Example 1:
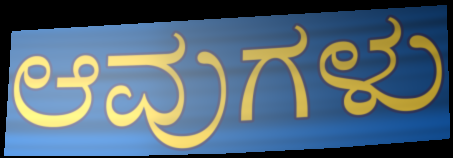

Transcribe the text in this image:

ಆವುಗಳು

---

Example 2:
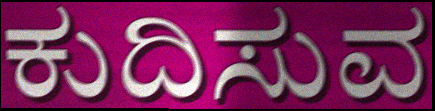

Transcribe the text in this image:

ಕುದಿಸುವ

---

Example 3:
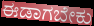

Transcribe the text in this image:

ಈಡಾಗಬೇಕು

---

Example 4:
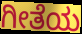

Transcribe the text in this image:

ಗೀತೆಯ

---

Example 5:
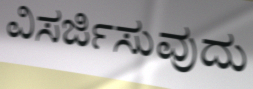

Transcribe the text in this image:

ವಿಸರ್ಜಿಸುವುದು